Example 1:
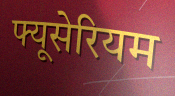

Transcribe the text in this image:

फ्यूसेरियम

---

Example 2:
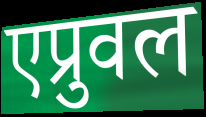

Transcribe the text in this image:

एप्रुवल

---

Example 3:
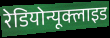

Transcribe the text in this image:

रेडियोन्यूक्लाइड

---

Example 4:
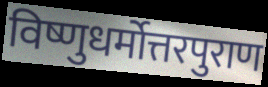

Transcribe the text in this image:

विष्णुधर्मोत्तरपुराण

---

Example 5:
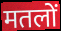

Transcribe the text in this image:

मतलों